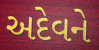
અદેવને